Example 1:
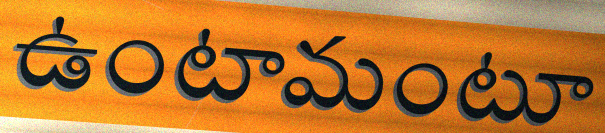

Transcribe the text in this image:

ఉంటామంటూ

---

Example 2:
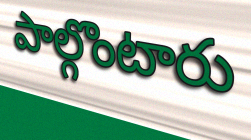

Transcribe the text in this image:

పాల్గొంటారు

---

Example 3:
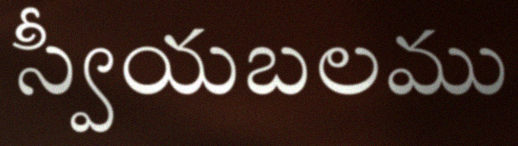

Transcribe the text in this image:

స్వీయబలము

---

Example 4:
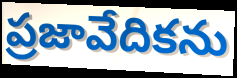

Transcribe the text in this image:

ప్రజావేదికను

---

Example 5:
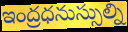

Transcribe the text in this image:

ఇంద్రధనుస్సుల్ని